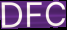
DFC